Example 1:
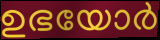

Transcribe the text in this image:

ഉഭയോർ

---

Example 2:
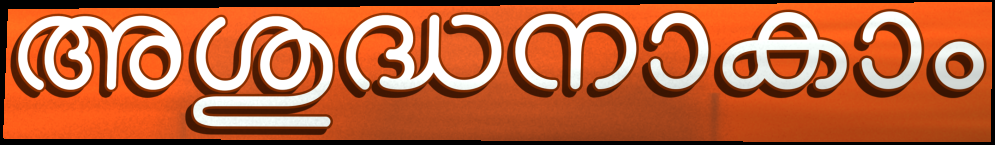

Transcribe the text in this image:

അശുദ്ധനാകാം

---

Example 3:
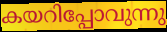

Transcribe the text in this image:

കയറിപ്പോവുന്നു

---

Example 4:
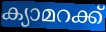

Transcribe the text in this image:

ക്യാമറക്ക്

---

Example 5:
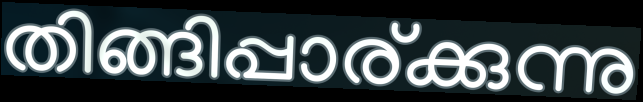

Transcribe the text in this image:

തിങ്ങിപ്പാര്ക്കുന്നു